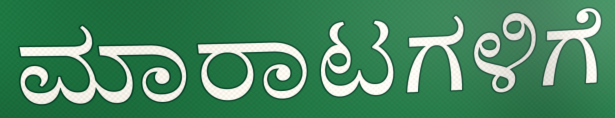
ಮಾರಾಟಗಳಿಗೆ